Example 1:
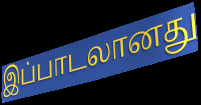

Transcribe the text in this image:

இப்பாடலானது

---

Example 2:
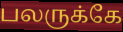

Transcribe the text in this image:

பலருக்கே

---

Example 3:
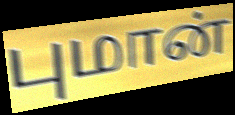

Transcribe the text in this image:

புமான்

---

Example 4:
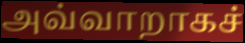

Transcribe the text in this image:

அவ்வாறாகச்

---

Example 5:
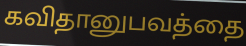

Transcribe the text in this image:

கவிதானுபவத்தை